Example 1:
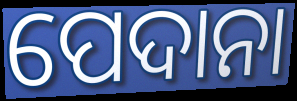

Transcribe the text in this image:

ପେଦାନା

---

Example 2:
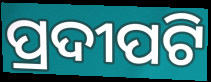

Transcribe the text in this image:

ପ୍ରଦୀପଟି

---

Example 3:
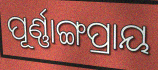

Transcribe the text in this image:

ପୂର୍ଣ୍ଣାଙ୍ଗପ୍ରାୟ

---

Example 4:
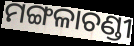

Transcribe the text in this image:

ମଙ୍ଗଳାଚଣ୍ଡୀ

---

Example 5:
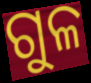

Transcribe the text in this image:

ଗୁଳ